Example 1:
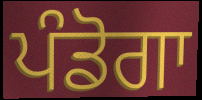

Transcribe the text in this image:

ਪੰਡੋਗਾ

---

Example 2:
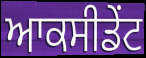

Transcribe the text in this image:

ਆਕਸੀਡੇਂਟ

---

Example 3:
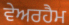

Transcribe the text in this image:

ਵੇਅਰਹੈਮ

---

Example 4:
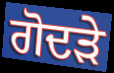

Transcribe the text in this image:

ਗੋਦੜੇ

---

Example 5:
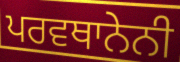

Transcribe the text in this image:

ਪਰਵਥਾਨੇਨੀ